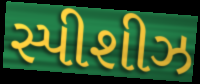
સ્પીશીઝ